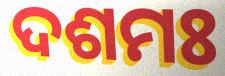
ଦଶମଃ